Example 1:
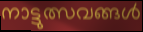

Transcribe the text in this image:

നാട്ടുത്സവങ്ങൾ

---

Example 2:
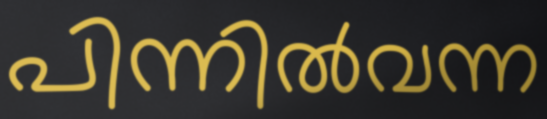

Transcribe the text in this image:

പിന്നിൽവന്ന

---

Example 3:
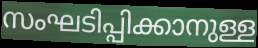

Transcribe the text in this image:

സംഘടിപ്പിക്കാനുള്ള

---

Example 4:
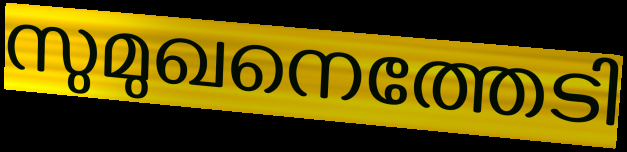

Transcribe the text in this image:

സുമുഖനെത്തേടി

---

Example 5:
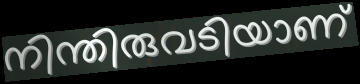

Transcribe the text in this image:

നിന്തിരുവടിയാണ്